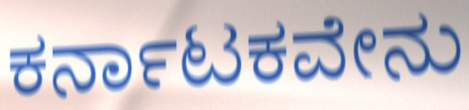
ಕರ್ನಾಟಕವೇನು